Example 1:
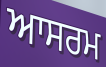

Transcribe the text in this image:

ਆਸਰਮ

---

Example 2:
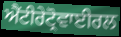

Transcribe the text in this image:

ਐਂਟੀਰੇਟ੍ਰੋਵਾਈਰਲ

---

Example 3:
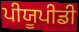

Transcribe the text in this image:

ਪੀਯੂਪੀਡੀ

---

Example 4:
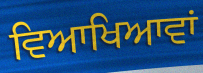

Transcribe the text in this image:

ਵਿਆਖਿਆਵਾਂ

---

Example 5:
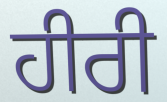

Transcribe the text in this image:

ਹੀਰੀ